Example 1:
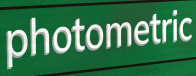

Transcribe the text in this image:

photometric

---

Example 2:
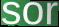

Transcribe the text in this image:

sor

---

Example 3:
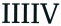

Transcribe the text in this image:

IIIIV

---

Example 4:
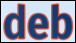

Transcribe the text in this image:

deb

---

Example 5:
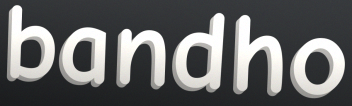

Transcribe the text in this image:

bandho